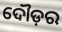
ଦୌଡ଼ର